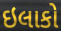
ઇલાકો